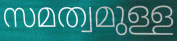
സമത്വമുള്ള